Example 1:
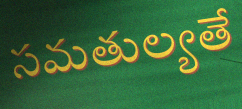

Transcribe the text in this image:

సమతుల్యతే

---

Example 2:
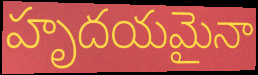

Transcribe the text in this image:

హృదయమైనా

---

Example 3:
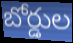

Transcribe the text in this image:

బోర్డుల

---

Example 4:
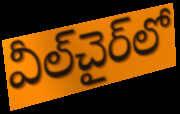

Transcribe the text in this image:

వీల్‌చైర్‌లో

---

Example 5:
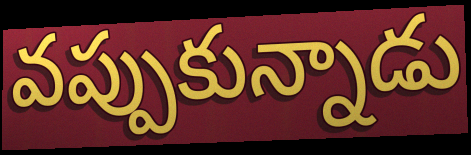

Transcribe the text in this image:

వప్పుకున్నాడు